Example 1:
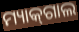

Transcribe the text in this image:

ମ୍ୟାକ୍‌ଗାଲ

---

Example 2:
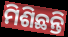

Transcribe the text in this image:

ମିଶିଛନ୍ତି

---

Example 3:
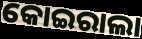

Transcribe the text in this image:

କୋଇରାଲା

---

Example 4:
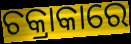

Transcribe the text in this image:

ଚକ୍ରାକାରେ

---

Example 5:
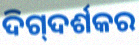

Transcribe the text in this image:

ଦିଗ୍‌ଦର୍ଶକର